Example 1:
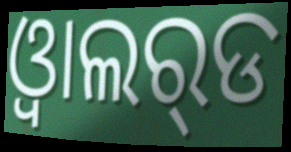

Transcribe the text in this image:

ଓ୍ବାଲର୍‌ଡ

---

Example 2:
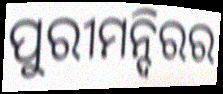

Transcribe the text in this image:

ପୁରୀମନ୍ଦିରର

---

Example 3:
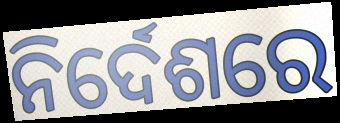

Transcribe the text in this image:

ନିର୍ଦେଶରେ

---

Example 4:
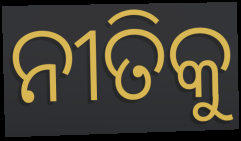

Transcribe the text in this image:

ନୀତିକୁ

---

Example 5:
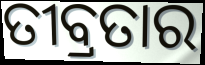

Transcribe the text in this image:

ତୀବ୍ରତାର